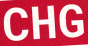
CHG